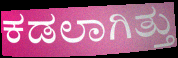
ಕಡಲಾಗಿತ್ತು